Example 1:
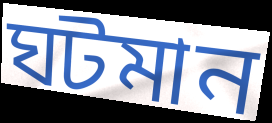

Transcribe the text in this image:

ঘটমান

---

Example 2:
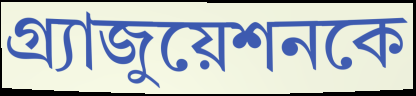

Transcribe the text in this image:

গ্র্যাজুয়েশনকে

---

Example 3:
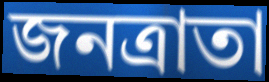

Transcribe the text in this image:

জনত্রাতা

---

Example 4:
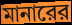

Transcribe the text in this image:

মানারের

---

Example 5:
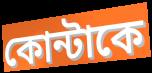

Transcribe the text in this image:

কোন্টাকে